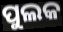
ପୁଲକ